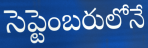
సెప్టెంబరులోనే